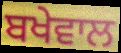
ਬਖੇਵਾਲ